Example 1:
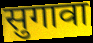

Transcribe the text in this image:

सुगावा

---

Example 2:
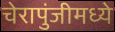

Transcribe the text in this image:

चेरापुंजीमध्ये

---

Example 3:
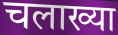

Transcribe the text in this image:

चलाख्या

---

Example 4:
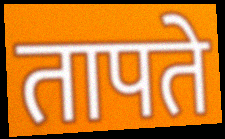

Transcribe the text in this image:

तापते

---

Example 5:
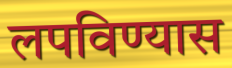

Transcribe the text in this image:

लपविण्यास